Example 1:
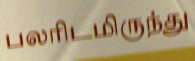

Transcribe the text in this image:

பலரிடமிருந்து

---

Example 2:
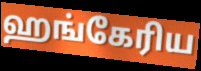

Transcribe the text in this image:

ஹங்கேரிய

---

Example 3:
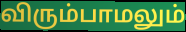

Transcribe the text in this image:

விரும்பாமலும்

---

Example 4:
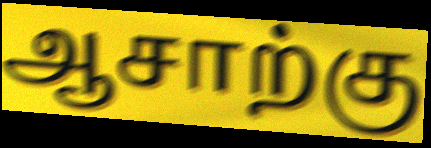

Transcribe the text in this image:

ஆசாற்கு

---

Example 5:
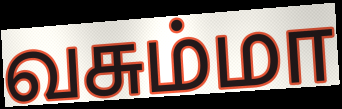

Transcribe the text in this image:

வசும்மா